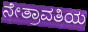
ನೇತ್ರಾವತಿಯ